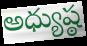
అధ్యుష్ఠ